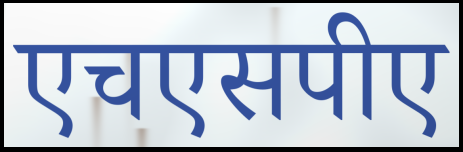
एचएसपीए